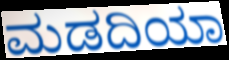
ಮಡದಿಯಾ